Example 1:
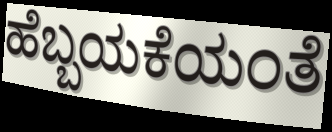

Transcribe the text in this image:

ಹೆಬ್ಬಯಕೆಯಂತೆ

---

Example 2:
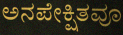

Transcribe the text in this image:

ಅನಪೇಕ್ಷಿತವೂ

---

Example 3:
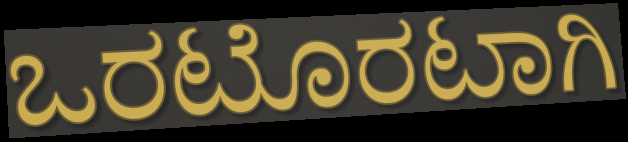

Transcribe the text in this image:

ಒರಟೊರಟಾಗಿ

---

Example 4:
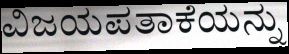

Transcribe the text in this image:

ವಿಜಯಪತಾಕೆಯನ್ನು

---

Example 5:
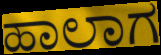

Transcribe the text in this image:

ಹಾಲಾಗ